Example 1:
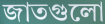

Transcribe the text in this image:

জাতগুলো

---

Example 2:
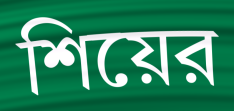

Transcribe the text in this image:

শিয়ের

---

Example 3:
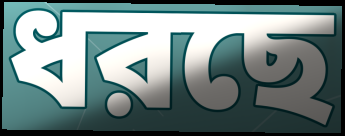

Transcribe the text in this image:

ধরছে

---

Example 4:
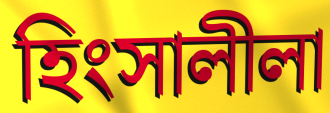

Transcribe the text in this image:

হিংসালীলা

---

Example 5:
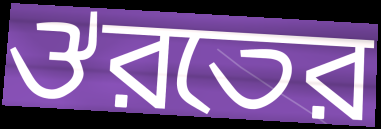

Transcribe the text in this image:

ঔরতের